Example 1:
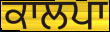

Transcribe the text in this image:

ਕਾਲਪਾ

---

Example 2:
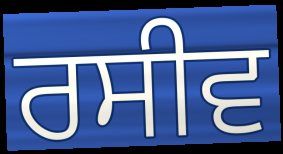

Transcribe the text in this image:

ਰਸੀਵ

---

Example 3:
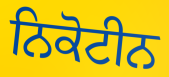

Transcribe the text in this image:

ਨਿਕੋਟੀਨ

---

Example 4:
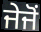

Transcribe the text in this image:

ਜੇਜੋਂ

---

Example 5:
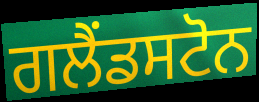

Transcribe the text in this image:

ਗਲੈਂਡਸਟੋਨ